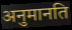
अनुमानति